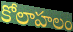
కోలాహలం